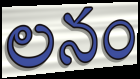
లనం